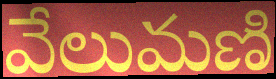
వేలుమణి